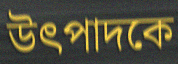
উৎপাদকে